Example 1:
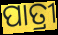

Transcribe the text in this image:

ପାତ୍ରୀ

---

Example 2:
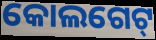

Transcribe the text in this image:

କୋଲଗେଟ୍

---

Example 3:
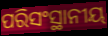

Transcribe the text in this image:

ପରିସଂସ୍ଥାନୀୟ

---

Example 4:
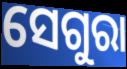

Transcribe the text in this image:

ସେଗୁରା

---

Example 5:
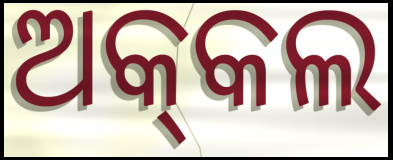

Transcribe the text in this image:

ଅକ୍‌କଲ